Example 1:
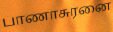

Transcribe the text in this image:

பாணாசுரனை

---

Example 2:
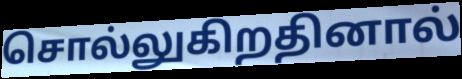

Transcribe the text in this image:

சொல்லுகிறதினால்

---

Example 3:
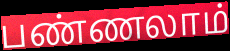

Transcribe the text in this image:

பண்ணலாம்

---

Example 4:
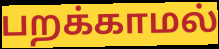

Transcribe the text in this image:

பறக்காமல்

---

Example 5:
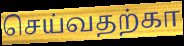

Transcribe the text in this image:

செய்வதற்கா